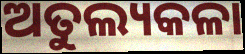
ଅତୁଲ୍ୟକଳା